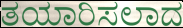
ತಯಾರಿಸಲಾದ